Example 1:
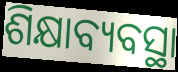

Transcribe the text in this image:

ଶିକ୍ଷାବ୍ୟବସ୍ଥା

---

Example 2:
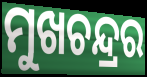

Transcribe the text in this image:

ମୁଖଚନ୍ଦ୍ରର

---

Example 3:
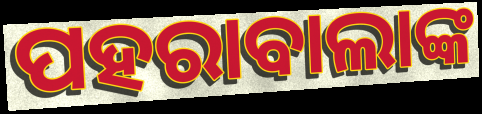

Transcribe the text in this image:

ପହରାବାଲାଙ୍କ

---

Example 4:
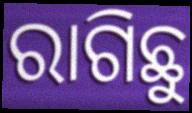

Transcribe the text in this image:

ରାଗିଛୁ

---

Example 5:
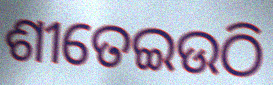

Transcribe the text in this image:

ଶୀତେଇଉଠି